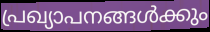
പ്രഖ്യാപനങ്ങൾക്കും